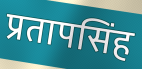
प्रतापसिंह